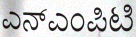
ಎನ್ಎಂಪಿಟಿ